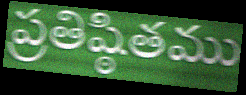
ప్రతిష్ఠితము